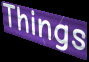
Things